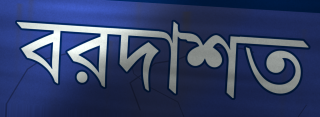
বরদাশত